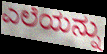
ಎಲೆಯನ್ನು